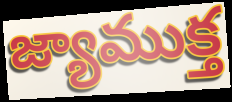
జ్యాముక్త